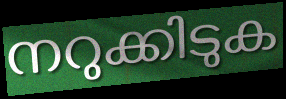
നറുക്കിടുക